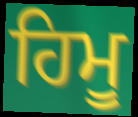
ਹਿਮੂ